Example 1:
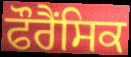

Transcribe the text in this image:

ਫੌਰੈਂਸਿਕ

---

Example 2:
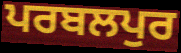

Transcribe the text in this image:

ਪਰਬਲਪੁਰ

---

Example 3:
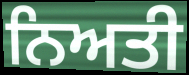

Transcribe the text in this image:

ਨਿਅਤੀ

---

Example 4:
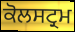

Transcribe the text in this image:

ਕੋਲਸਟ੍ਰਮ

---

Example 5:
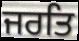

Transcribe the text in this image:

ਜਰਤਿ